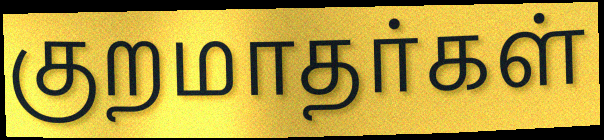
குறமாதர்கள்